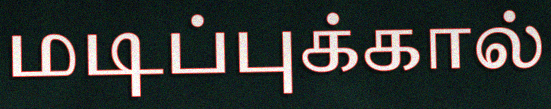
மடிப்புக்கால்